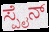
ಸ್ಪೈನ್